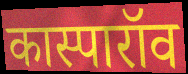
कास्पारॉव